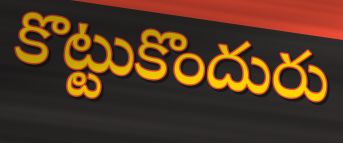
కొట్టుకొందురు